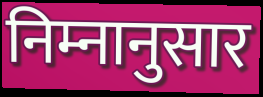
निम्‍नानुसार